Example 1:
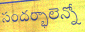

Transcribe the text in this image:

సందర్భాలెన్నో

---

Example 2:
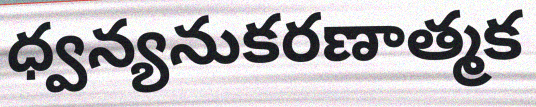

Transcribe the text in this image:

ధ్వన్యనుకరణాత్మక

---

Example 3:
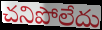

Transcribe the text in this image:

చనిపోలేదు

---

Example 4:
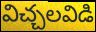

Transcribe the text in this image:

విచ్చలవిడి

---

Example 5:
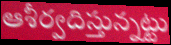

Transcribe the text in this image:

ఆశీర్వదిస్తున్నట్టు